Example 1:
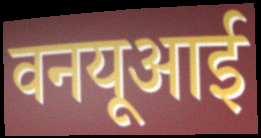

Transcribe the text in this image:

वनयूआई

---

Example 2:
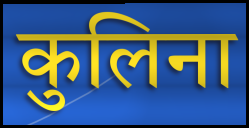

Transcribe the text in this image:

कुलिना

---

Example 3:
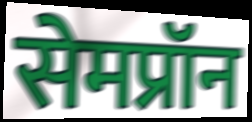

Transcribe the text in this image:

सेमप्रॉन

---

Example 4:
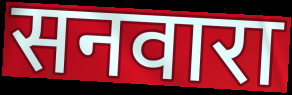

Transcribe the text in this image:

सनवारा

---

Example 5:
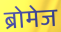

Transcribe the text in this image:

ब्रोमेज